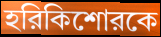
হরিকিশোরকে